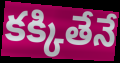
కక్కితేనే